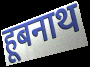
हूबनाथ